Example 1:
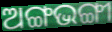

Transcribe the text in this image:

ଅଙ୍ଗଭଙ୍ଗୀ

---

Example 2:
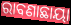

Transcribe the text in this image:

ରାବଣାଛାୟା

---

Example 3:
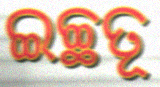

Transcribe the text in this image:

ଇଚ୍ଛତୂ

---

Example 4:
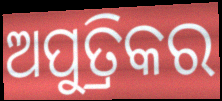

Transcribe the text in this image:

ଅପୁତ୍ରିକର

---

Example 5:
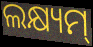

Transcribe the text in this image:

ଲକ୍ଷ୍ୟମ୍